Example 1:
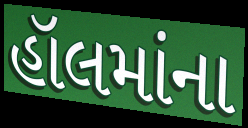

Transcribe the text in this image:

હૉલમાંના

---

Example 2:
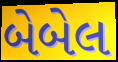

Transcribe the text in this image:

બેબેલ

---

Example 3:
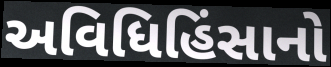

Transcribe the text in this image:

અવિધિહિંસાનો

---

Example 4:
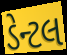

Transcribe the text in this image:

ડેન્ટલ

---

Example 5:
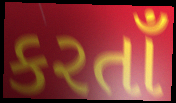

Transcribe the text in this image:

કરતાઁ